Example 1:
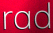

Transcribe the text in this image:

rad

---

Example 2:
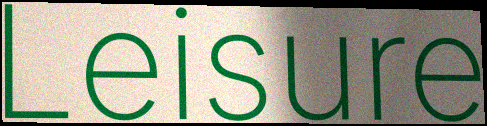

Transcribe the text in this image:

Leisure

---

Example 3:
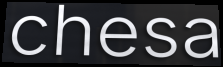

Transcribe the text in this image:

chesa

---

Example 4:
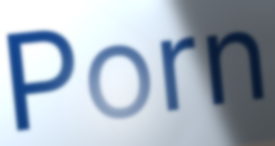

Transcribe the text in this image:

Porn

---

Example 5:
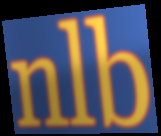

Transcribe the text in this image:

nlb